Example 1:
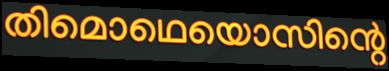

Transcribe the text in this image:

തിമൊഥെയൊസിന്റെ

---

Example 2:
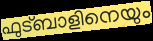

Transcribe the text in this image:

ഫുട്ബാളിനെയും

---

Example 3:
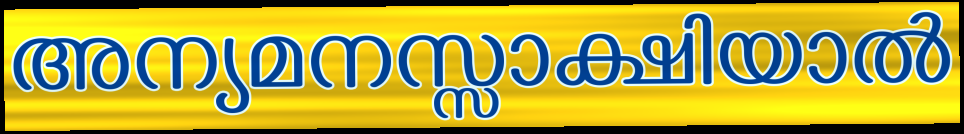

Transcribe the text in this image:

അന്യമനസ്സാക്ഷിയാൽ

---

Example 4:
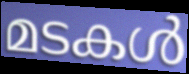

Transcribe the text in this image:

മടകൾ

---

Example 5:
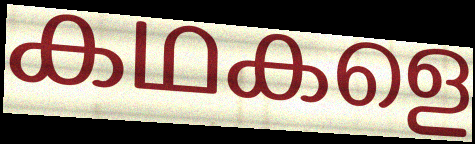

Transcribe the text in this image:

കഥകളെ